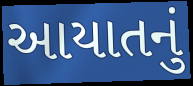
આયાતનું